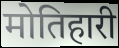
मोतिहारी